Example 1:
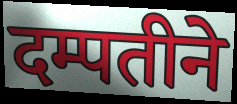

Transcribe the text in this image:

दम्पतीने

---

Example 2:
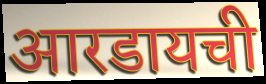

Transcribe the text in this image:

आरडायची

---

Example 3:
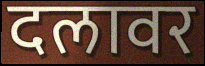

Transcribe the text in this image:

दलावर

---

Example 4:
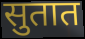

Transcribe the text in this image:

सुतात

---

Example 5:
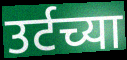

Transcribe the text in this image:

उर्टच्या